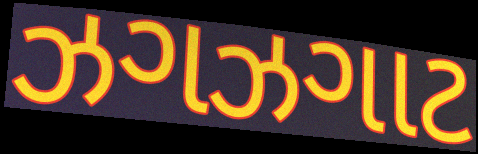
ઝગઝગાટ